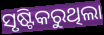
ସୃଷ୍ଟିକରୁଥିଲା